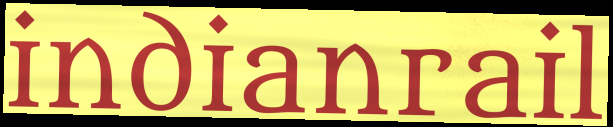
indianrail